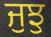
ਜੁਝੁ